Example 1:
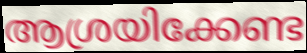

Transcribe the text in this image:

ആശ്രയിക്കേണ്ട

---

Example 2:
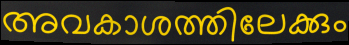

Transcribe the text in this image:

അവകാശത്തിലേക്കും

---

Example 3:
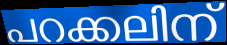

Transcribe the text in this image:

പറക്കലിന്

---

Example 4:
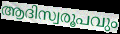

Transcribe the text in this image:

ആദിസ്വരൂപവും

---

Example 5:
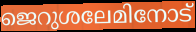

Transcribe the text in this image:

ജെറുശലേമിനോട്